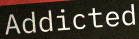
Addicted